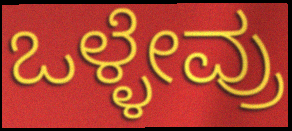
ಒಳ್ಳೇವ್ರು